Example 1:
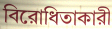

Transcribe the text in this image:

বিরোধিতাকারী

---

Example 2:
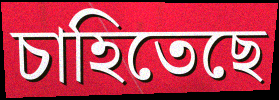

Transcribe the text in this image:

চাহিতেছে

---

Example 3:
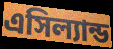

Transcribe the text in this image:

এসিল্যান্ড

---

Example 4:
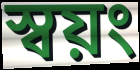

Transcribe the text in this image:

স্বয়ং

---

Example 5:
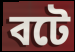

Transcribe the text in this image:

বটে